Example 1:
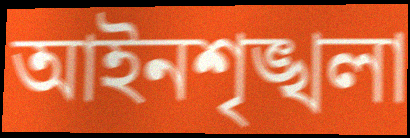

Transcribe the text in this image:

আইনশৃঙ্খলা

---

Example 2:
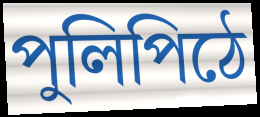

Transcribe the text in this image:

পুলিপিঠে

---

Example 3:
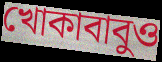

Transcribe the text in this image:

খোকাবাবুও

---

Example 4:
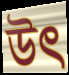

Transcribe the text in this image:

উৎ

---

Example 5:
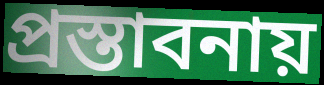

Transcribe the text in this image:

প্রস্তাবনায়